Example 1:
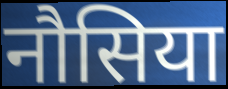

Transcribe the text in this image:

नौसिया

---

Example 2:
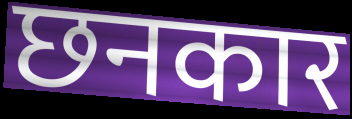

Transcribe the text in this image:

छनकार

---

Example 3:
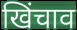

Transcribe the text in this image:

खिंचाव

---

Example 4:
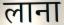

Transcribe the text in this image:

लाना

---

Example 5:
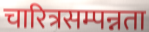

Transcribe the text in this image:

चारित्रसम्पन्नता